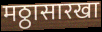
मठ्ठासारखा